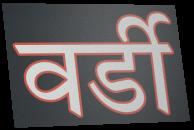
वर्डी